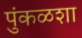
पुंकळशा